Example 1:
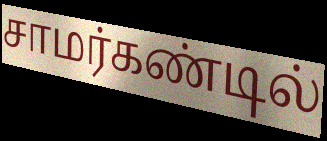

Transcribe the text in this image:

சாமர்கண்டில்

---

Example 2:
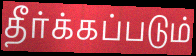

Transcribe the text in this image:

தீர்க்கப்படும்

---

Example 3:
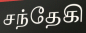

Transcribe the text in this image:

சந்தேகி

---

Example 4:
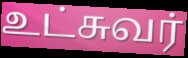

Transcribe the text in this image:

உட்சுவர்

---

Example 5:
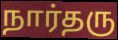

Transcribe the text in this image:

நார்தரு